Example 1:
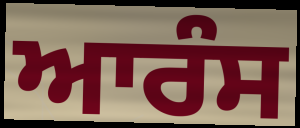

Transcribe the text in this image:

ਆਰੰਸ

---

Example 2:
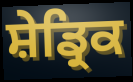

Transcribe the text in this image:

ਸ਼ੇਡ੍ਰਿਕ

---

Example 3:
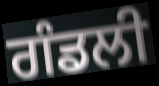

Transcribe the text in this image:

ਗੰਡਲੀ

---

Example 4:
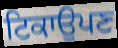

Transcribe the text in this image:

ਟਿਕਾਉਪਣ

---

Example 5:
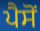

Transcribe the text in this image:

ਪੈਸੋਂ